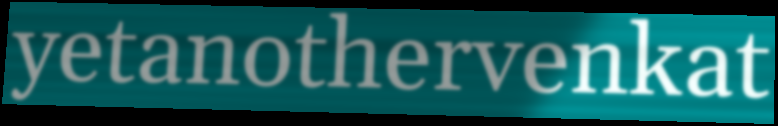
yetanothervenkat